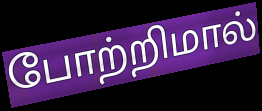
போற்றிமால்